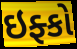
ઇફ્કો